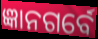
ଜ୍ଞାନଗର୍ବେ